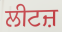
ਲੀਟਜ਼